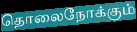
தொலைநோக்கும்